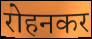
रोहनकर